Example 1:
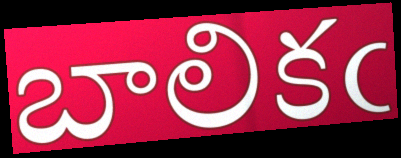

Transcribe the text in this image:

బాలికఁ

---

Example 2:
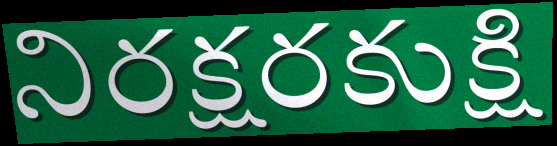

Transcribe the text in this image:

నిరక్షరకుక్షి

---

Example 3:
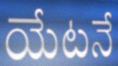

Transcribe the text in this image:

యేటనే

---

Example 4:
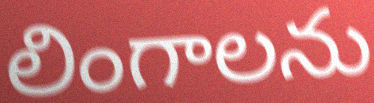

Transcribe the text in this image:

లింగాలను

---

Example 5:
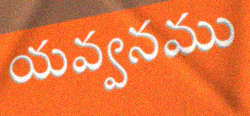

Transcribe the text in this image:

యవ్వనము